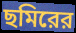
ছমিরের